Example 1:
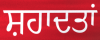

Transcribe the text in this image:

ਸ਼ਹਾਦਤਾਂ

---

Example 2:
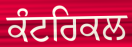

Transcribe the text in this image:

ਕੰਟਰਿਕਲ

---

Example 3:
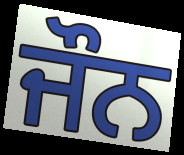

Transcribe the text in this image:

ਜੌਨ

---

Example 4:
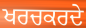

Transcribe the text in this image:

ਖਰਚਕਰਦੇ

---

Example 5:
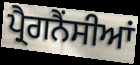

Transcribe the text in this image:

ਪ੍ਰੈਗਨੈਂਸੀਆਂ